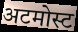
अटमोस्ट